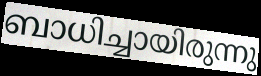
ബാധിച്ചായിരുന്നു